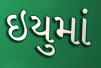
ઇયુમાં